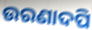
ଉରଣାଦପି